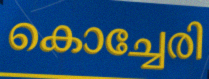
കൊച്ചേരി